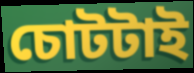
চোটটাই